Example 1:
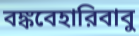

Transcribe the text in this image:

বঙ্কবেহারিবাবু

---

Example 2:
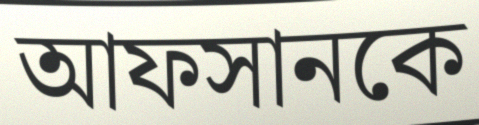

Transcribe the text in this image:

আফসানকে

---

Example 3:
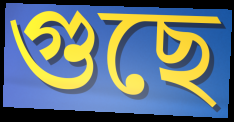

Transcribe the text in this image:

গুছে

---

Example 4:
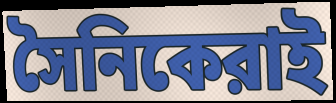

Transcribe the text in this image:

সৈনিকেরাই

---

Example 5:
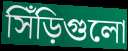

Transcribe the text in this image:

সিঁড়িগুলো